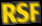
RSF